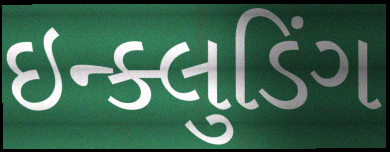
ઇન્ક્લુડિંગ